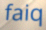
faiq